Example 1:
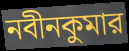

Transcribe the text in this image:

নবীনকুমার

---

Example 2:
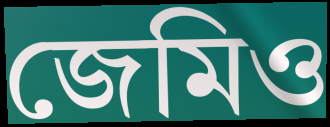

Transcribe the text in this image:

জেমিও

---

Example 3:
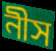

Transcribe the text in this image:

নীস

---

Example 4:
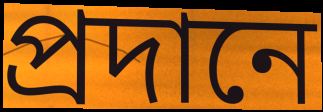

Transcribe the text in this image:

প্রদানে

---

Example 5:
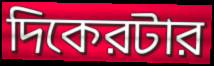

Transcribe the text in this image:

দিকেরটার